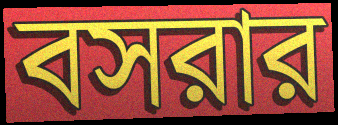
বসরার